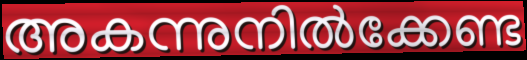
അകന്നുനിൽക്കേണ്ട